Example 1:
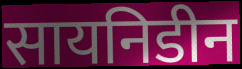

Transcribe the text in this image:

सायनिडीन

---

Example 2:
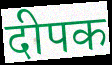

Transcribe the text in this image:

दीपक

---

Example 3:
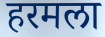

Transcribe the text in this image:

हरमला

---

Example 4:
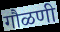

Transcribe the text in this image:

गौळणी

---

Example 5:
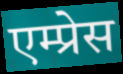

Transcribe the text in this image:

एम्प्रेस